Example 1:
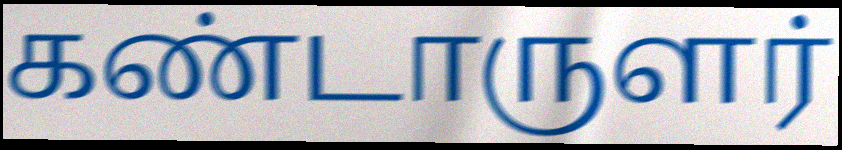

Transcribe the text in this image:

கண்டாருளர்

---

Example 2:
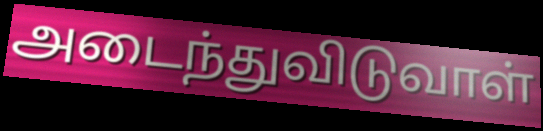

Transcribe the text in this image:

அடைந்துவிடுவாள்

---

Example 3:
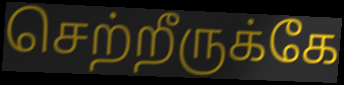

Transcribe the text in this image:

செற்றீருக்கே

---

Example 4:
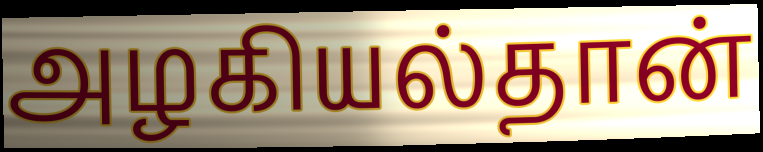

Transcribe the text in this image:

அழகியல்தான்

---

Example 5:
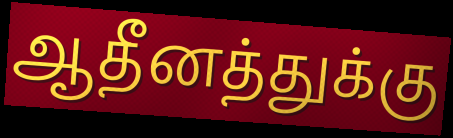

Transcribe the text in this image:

ஆதீனத்துக்கு